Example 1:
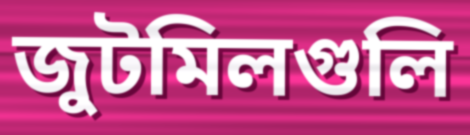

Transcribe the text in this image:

জুটমিলগুলি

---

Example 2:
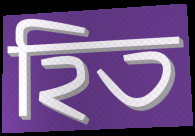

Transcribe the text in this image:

হিত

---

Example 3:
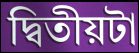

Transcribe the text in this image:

দ্বিতীয়টা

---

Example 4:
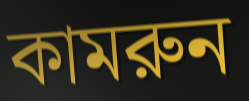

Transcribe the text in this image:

কামরুন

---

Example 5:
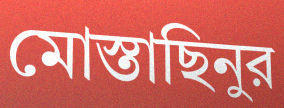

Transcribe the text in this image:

মোস্তাছিনুর